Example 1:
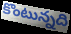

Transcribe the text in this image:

కొంటున్నది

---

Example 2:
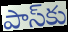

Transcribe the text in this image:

పాస్‌కు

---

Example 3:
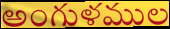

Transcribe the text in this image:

అంగుళముల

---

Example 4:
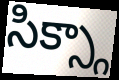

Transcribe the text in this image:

సిక్స్గా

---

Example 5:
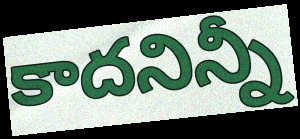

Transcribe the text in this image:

కాదనిన్నీ